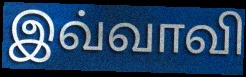
இவ்வாவி